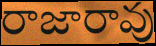
రాజారావు